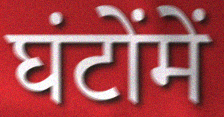
घंटोंमें